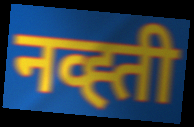
नव्ह्ती